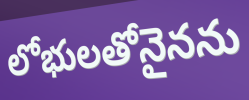
లోభులతోనైనను